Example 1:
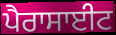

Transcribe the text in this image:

ਪੈਰਾਸਾਈਟ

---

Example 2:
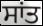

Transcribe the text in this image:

ਸਾਂਤ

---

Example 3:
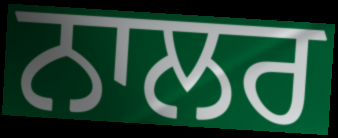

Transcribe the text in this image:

ਨਾਲਰ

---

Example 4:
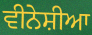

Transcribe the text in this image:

ਵੀਨੇਸ਼ੀਆ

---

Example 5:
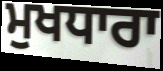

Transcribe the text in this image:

ਮੁਖਧਾਰਾ